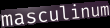
masculinum